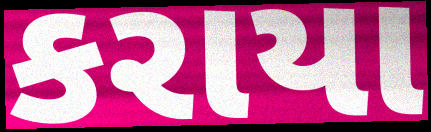
કરાયા